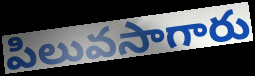
పిలువసాగారు